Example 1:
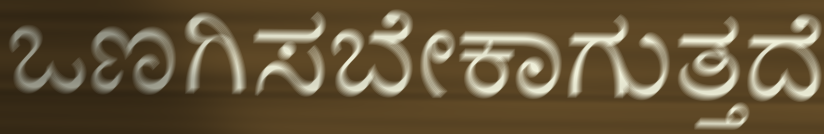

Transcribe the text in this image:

ಒಣಗಿಸಬೇಕಾಗುತ್ತದೆ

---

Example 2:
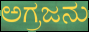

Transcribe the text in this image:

ಅಗ್ರಜನು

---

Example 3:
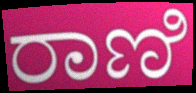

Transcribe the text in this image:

ರಾಣಿ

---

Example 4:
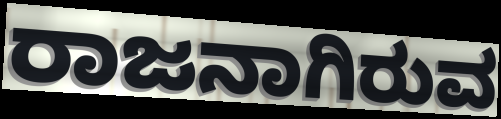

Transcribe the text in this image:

ರಾಜನಾಗಿರುವ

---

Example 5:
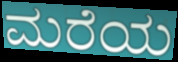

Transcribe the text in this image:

ಮರೆಯ